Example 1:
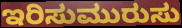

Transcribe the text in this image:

ಇರಿಸುಮುರುಸು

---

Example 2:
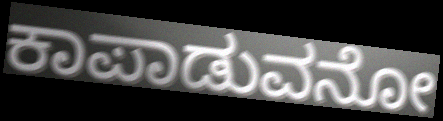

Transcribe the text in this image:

ಕಾಪಾಡುವನೋ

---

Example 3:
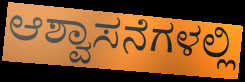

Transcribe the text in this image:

ಆಶ್ವಾಸನೆಗಳಲ್ಲಿ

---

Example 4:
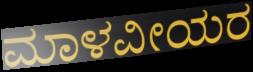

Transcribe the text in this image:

ಮಾಳವೀಯರ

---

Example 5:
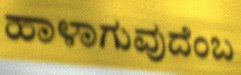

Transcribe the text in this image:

ಹಾಳಾಗುವುದೆಂಬ